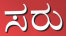
ಸರು